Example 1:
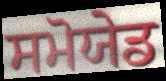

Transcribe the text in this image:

ਸਮੋਯੇਡ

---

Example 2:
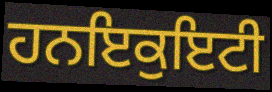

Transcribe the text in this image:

ਹਨਇਕੁਇਟੀ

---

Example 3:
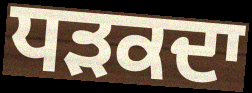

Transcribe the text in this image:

ਧੜਕਦਾ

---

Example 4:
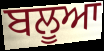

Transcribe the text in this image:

ਬਲੂਆ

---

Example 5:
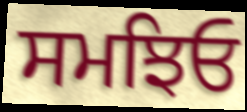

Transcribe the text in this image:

ਸਮਝਿਓ